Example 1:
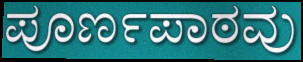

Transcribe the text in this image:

ಪೂರ್ಣಪಾಠವು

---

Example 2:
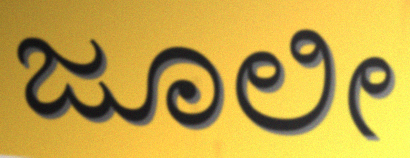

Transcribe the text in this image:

ಜೂಲೀ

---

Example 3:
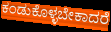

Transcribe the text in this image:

ಕಂಡುಕೊಳ್ಳಬೇಕಾದರೆ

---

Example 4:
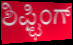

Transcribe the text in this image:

ಶಿಫ್ಟಿಂಗ್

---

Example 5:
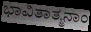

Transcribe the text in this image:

ಭಾವಿತಾತ್ಮನಾಂ